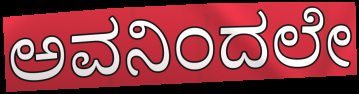
ಅವನಿಂದಲೇ